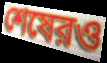
শেষেরও